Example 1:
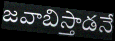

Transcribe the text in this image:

జవాబిస్తాడనే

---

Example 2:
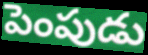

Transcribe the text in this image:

పెంపుడు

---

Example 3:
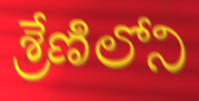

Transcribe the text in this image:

శ్రేణిలోని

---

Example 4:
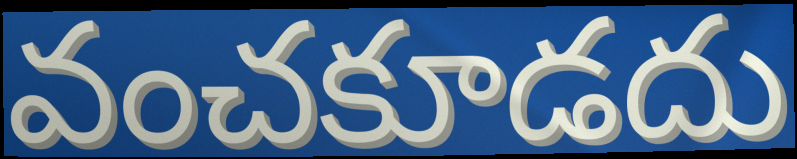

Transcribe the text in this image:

వంచకూడదు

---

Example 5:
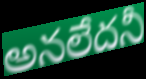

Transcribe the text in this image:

అనలేదనీ